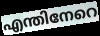
എന്തിനേറെ